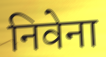
निवेना